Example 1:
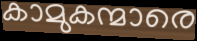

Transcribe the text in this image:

കാമുകന്മാരെ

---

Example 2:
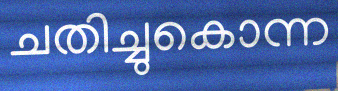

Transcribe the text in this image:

ചതിച്ചുകൊന്ന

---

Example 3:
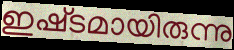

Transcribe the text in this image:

ഇഷ്‌ടമായിരുന്നു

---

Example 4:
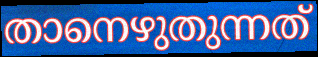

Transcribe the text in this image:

താനെഴുതുന്നത്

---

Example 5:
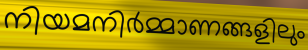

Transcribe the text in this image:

നിയമനിർമ്മാണങ്ങളിലും